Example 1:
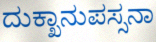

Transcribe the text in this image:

ದುಕ್ಖಾನುಪಸ್ಸನಾ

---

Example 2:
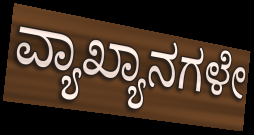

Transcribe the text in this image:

ವ್ಯಾಖ್ಯಾನಗಳೇ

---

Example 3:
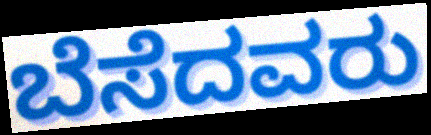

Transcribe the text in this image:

ಬೆಸೆದವರು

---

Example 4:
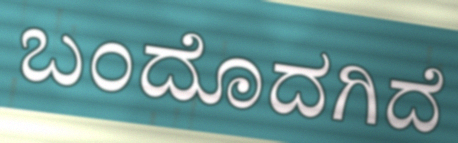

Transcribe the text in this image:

ಬಂದೊದಗಿದೆ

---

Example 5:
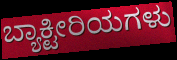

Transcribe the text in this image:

ಬ್ಯಾಕ್ಟೀರಿಯಗಳು